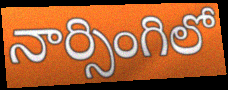
నార్సింగిలో